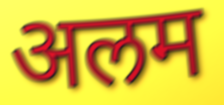
अलम